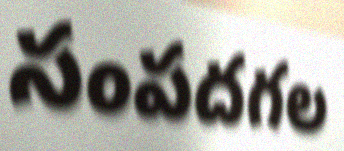
సంపదగల